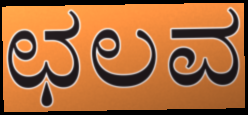
ಛಲವ